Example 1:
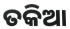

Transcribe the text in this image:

ତକିଆ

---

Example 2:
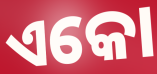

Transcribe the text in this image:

ଏକୋ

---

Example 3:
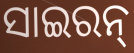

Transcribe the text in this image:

ସାଇରନ୍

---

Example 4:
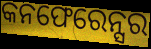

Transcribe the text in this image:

କନଫେରେନ୍ସର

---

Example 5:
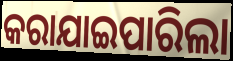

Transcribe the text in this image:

କରାଯାଇପାରିଲା